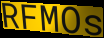
RFMOs